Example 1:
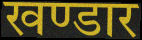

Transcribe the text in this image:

खण्डार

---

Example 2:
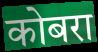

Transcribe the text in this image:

कोबरा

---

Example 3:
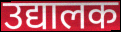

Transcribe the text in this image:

उद्यालक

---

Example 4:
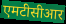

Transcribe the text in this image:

एमटीसीआर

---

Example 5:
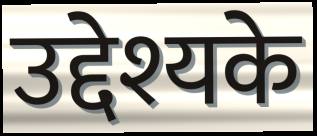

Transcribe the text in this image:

उद्देश्यके